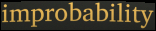
improbability